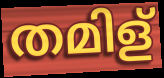
തമിള്